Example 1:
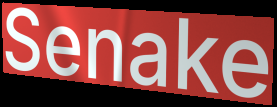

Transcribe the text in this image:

Senake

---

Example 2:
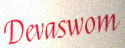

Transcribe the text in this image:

Devaswom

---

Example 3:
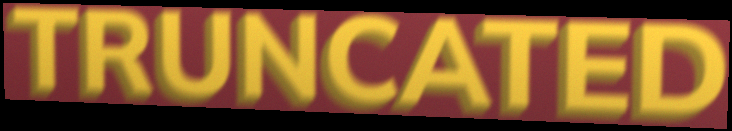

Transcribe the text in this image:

TRUNCATED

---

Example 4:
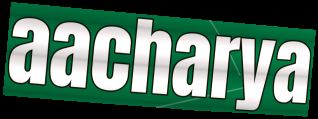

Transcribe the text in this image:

aacharya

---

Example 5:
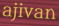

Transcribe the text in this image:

ajivan